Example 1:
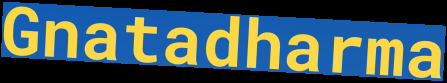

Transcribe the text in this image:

Gnatadharma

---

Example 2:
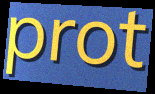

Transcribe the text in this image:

prot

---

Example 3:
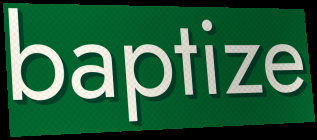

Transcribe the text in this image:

baptize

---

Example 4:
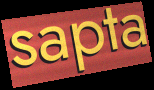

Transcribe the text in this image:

sapta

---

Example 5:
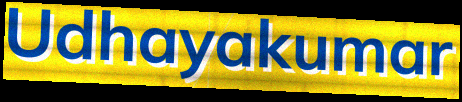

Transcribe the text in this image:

Udhayakumar